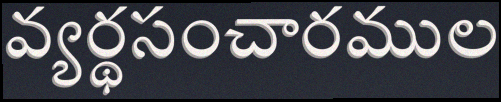
వ్యర్థసంచారముల